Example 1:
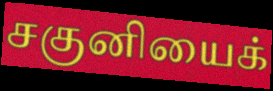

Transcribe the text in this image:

சகுனியைக்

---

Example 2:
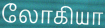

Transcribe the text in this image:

லோகியா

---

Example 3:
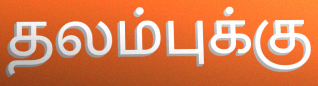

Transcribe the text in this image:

தலம்புக்கு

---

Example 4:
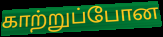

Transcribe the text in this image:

காற்றுப்போன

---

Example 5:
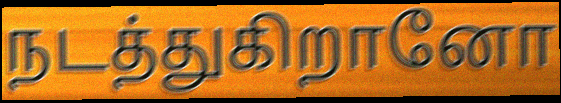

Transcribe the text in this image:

நடத்துகிறானோ